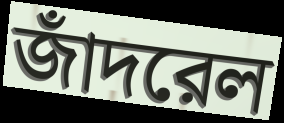
জাঁদরেল